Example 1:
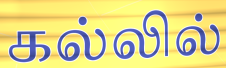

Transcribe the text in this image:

கல்லில்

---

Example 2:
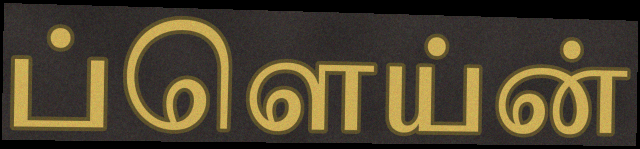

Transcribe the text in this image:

ப்ளெய்ன்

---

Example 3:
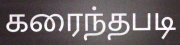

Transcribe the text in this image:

கரைந்தபடி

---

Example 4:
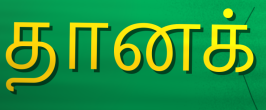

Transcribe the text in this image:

தானக்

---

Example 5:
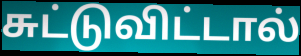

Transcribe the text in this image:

சுட்டுவிட்டால்